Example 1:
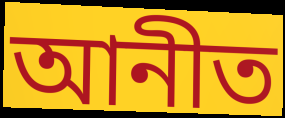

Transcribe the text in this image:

আনীত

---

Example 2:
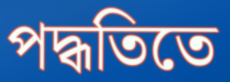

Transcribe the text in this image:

পদ্ধতিতে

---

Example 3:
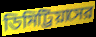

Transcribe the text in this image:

ডিমিট্রিয়াসের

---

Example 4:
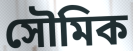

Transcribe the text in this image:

সৌমিক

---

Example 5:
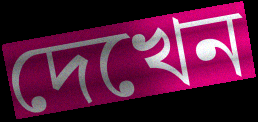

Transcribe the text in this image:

দেখেন